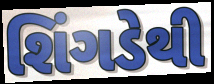
શિંગડેથી